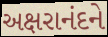
અક્ષરાનંદને